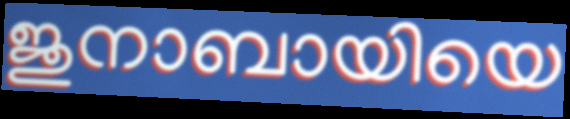
ജുനാബായിയെ